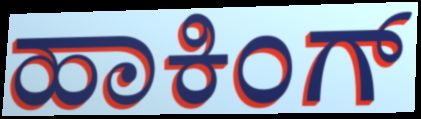
ಹಾಕಿಂಗ್